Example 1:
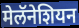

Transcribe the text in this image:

मेलॅनेशियन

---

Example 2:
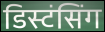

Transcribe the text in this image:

डिस्टंसिंग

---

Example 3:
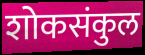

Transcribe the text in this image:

शोकसंकुल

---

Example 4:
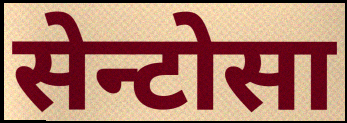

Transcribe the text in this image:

सेन्टोसा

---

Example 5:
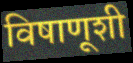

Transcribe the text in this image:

विषाणूशी